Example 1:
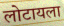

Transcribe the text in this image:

लोटायला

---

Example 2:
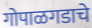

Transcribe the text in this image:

गोपाळगडाचे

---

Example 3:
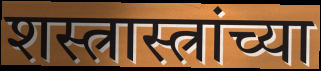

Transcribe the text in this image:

शस्त्रास्त्रांच्या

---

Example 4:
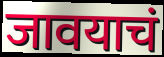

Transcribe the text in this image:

जावयाचं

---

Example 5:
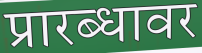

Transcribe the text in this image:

प्रारब्धावर